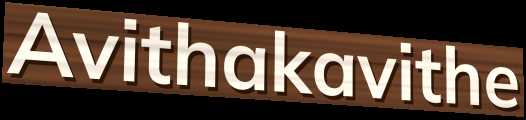
Avithakavithe